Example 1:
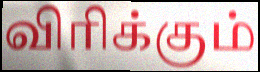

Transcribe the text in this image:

விரிக்கும்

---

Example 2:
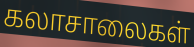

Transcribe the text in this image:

கலாசாலைகள்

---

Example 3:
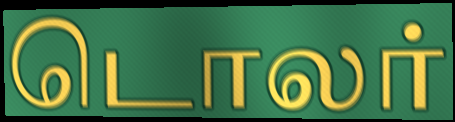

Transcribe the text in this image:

டொலர்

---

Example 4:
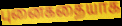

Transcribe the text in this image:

புனைகதையாக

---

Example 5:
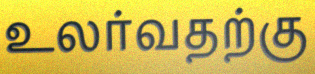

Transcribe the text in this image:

உலர்வதற்கு